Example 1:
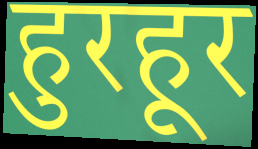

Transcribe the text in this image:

हुरहूर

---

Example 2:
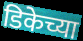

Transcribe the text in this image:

डिकेच्या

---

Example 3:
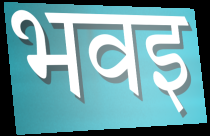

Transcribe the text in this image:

भवइ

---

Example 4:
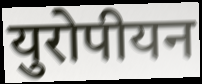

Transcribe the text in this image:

युरोपीयन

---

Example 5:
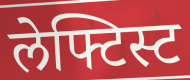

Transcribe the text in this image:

लेफ्टिस्ट